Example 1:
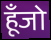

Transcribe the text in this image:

हूँजो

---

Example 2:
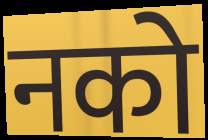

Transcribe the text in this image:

नको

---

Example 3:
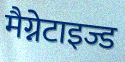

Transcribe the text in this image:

मैग्नेटाइज्ड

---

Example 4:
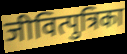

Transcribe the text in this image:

जीवित्पुत्रिका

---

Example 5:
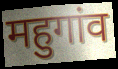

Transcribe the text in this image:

महुगांव